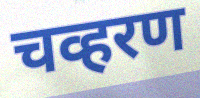
चव्हरण